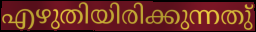
എഴുതിയിരിക്കുന്നതു്